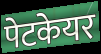
पेटकेयर